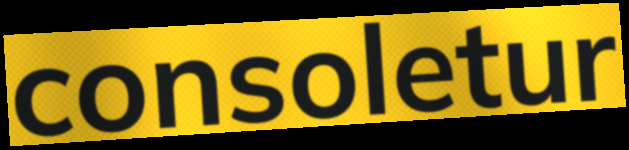
consoletur